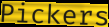
Pickers